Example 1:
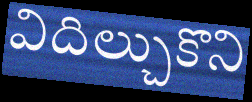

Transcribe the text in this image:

విదిల్చుకొని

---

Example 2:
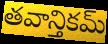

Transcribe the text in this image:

తవాన్తికమ్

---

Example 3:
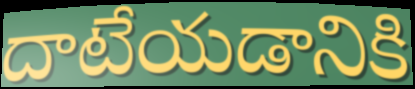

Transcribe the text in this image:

దాటేయడానికి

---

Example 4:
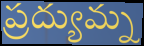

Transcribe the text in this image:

ప్రద్యుమ్న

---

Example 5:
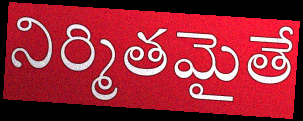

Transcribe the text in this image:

నిర్మితమైతే